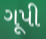
ગૂપી